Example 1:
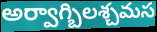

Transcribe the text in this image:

అర్వాగ్బిలశ్చమస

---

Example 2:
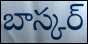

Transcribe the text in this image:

బాస్కర్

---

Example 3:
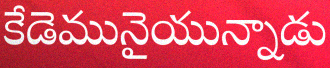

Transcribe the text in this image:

కేడెమునైయున్నాడు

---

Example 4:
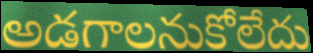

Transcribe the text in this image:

అడగాలనుకోలేదు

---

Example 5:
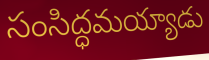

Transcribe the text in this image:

సంసిద్ధమయ్యాడు